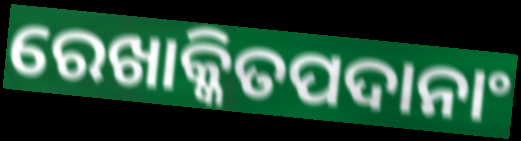
ରେଖାକ୍କିତପଦାନାଂ